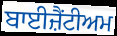
ਬਾਈਜ਼ੈਂਟੀਅਮ